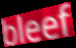
bleef